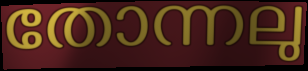
തോന്നലു